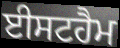
ਈਸਟਹੈਮ